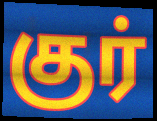
குர்